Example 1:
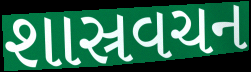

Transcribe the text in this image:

શાસ્રવચન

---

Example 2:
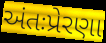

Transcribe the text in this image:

અંતઃપ્રેરણા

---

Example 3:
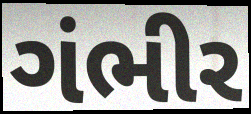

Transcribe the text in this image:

ગંભીર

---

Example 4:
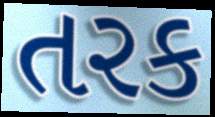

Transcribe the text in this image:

તરક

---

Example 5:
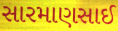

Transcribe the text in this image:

સારમાણસાઈ